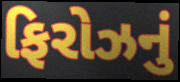
ફિરોઝનું